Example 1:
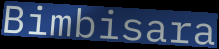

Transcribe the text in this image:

Bimbisara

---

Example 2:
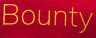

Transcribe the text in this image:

Bounty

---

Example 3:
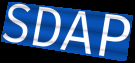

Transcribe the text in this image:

SDAP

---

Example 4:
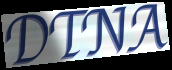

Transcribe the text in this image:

DTNA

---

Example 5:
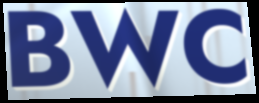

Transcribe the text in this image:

BWC